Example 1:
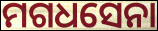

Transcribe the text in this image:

ମଗଧସେନା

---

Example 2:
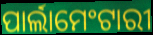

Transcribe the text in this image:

ପାର୍ଲାମେଂଟାରୀ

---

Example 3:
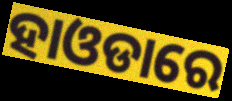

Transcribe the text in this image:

ହାଓଡାରେ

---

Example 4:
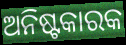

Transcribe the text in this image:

ଅନିଷ୍ଟକାରକ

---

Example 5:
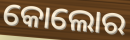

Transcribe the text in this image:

କୋଲୋର